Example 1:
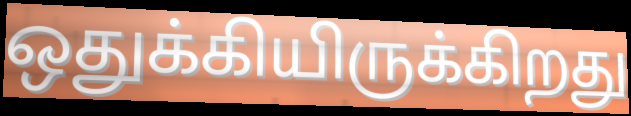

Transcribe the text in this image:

ஒதுக்கியிருக்கிறது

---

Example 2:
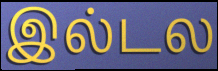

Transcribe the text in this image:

இல்டல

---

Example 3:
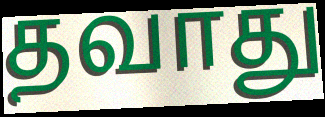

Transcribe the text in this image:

தவாது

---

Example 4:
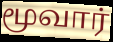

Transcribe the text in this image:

மூவார்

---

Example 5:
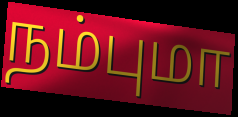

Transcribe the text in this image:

நம்புமா